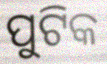
ପୁଟିକ